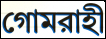
গোমরাহী